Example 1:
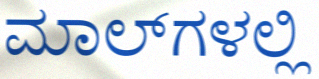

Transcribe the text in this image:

ಮಾಲ್‌ಗಳಲ್ಲಿ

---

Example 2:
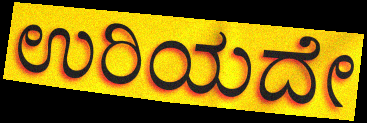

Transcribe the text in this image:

ಉರಿಯದೇ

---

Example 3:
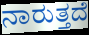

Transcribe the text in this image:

ನಾರುತ್ತದೆ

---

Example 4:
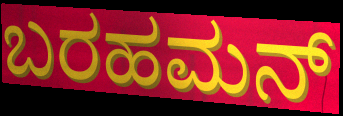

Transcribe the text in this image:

ಬರಹಮನ್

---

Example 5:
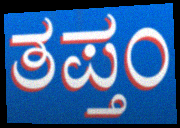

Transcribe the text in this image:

ತಪ್ತಂ